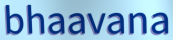
bhaavana